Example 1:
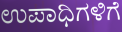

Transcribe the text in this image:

ಉಪಾಧಿಗಳಿಗೆ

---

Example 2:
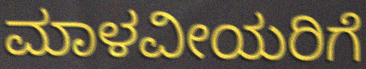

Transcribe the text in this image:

ಮಾಳವೀಯರಿಗೆ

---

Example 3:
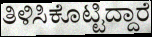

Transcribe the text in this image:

ತಿಳಿಸಿಕೊಟ್ಟಿದ್ದಾರೆ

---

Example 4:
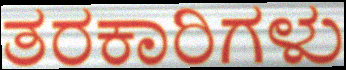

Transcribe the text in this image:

ತರಕಾರಿಗಳು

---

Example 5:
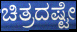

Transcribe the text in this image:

ಚಿತ್ರದಷ್ಟೇ